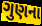
ગુણના